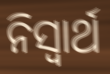
ନିସ୍ୱାର୍ଥ